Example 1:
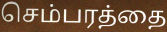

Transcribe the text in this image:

செம்பரத்தை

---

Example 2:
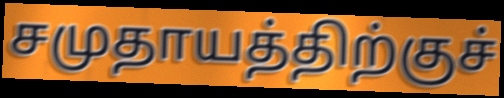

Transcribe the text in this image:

சமுதாயத்திற்குச்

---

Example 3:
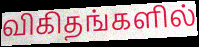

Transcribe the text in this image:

விகிதங்களில்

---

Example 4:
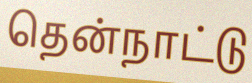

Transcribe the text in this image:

தென்நாட்டு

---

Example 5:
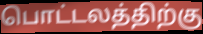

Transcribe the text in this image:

பொட்டலத்திற்கு